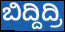
ಬಿದ್ದಿದ್ರಿ